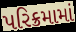
પરિક્રમામાં